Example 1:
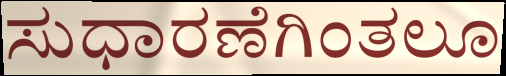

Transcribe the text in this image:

ಸುಧಾರಣೆಗಿಂತಲೂ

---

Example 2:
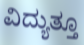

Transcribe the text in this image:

ವಿದ್ಯುತ್ತೂ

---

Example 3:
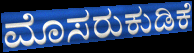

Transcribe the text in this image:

ಮೊಸರುಕುಡಿಕೆ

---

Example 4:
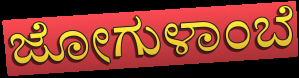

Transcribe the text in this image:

ಜೋಗುಳಾಂಬೆ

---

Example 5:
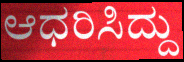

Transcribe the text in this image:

ಆಧರಿಸಿದ್ದು